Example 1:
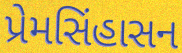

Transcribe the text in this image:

પ્રેમસિંહાસન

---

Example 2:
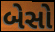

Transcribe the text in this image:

બેસો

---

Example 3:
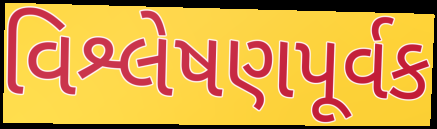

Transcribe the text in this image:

વિશ્લેષણપૂર્વક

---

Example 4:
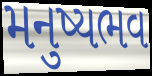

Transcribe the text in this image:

મનુષ્યભવ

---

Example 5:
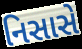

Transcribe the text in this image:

નિસાસે